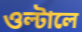
ওল্টালে